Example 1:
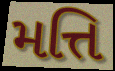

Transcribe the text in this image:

મત્તિ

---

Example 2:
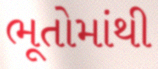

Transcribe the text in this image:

ભૂતોમાંથી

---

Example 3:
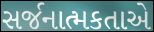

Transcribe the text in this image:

સર્જનાત્મકતાએ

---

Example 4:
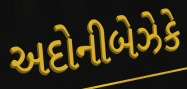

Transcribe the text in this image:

અદોનીબેઝેકે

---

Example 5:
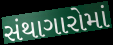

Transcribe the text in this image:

સંથાગારોમાં